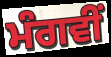
ਮੰਗਵੀਂ